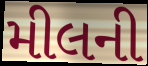
મીલની